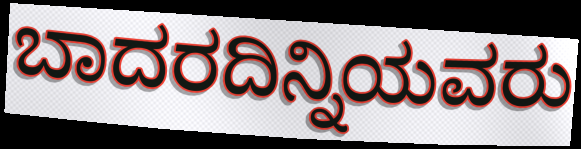
ಬಾದರದಿನ್ನಿಯವರು